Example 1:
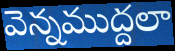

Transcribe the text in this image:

వెన్నముద్దలా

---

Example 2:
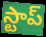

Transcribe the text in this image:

స్టాప్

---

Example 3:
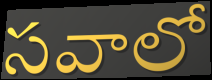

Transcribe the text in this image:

సవాలో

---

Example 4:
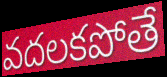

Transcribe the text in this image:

వదలకపోతే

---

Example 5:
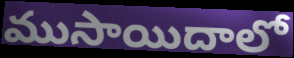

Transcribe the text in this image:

ముసాయిదాలో